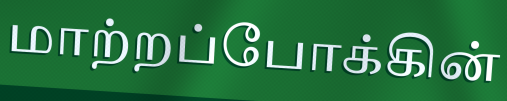
மாற்றப்போக்கின்